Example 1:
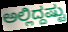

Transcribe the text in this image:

ಅಲ್ಲಿದ್ದಷ್ಟು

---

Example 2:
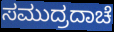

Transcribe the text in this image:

ಸಮುದ್ರದಾಚೆ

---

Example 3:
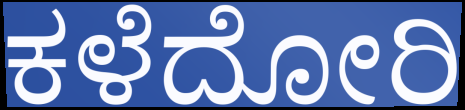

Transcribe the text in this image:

ಕಳೆದೋರಿ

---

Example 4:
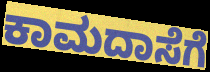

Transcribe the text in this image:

ಕಾಮದಾಸೆಗೆ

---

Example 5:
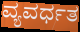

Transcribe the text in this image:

ವ್ಯವರ್ಧತ